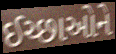
ઈચ્છાઓને